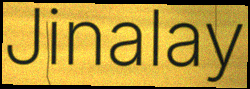
Jinalay